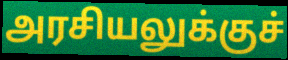
அரசியலுக்குச்